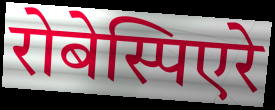
रोबेस्पिएरे